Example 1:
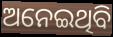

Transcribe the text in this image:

ଅନେଇଥିବି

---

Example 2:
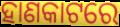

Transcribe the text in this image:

ହାଣକାଟରେ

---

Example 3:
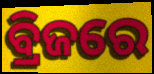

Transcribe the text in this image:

ବ୍ରିଜରେ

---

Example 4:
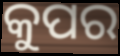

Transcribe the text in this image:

କୁପର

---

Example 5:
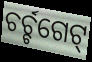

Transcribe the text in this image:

ଚର୍ଚ୍ଚଗେଟ୍